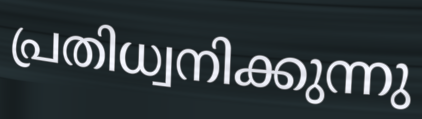
പ്രതിധ്വനിക്കുന്നു